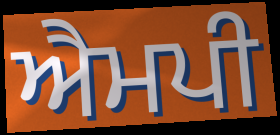
ਐਮਪੀ